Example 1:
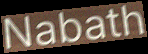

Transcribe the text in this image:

Nabath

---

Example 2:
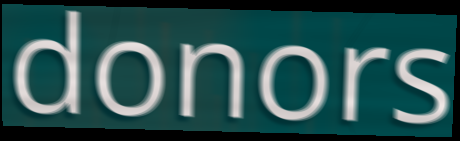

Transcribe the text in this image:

donors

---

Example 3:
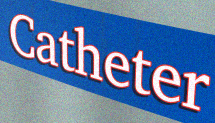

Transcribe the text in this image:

Catheter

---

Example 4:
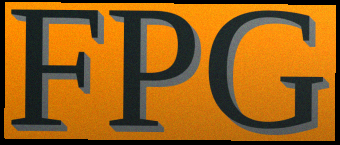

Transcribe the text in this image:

FPG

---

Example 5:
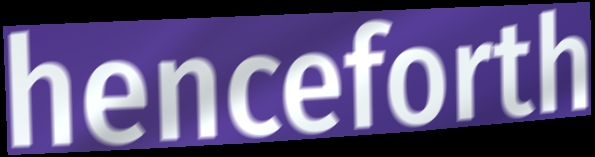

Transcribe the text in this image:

henceforth